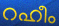
റഹീം